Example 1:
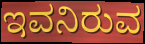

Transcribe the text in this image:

ಇವನಿರುವ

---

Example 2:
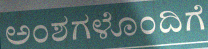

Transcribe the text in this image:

ಅಂಶಗಳೊಂದಿಗೆ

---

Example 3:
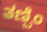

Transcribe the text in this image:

ತಣ್ಪಿಂ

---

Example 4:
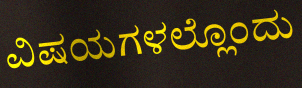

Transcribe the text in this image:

ವಿಷಯಗಳಲ್ಲೊಂದು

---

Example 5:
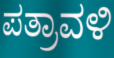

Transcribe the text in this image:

ಪತ್ರಾವಳಿ